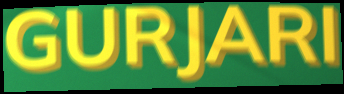
GURJARI